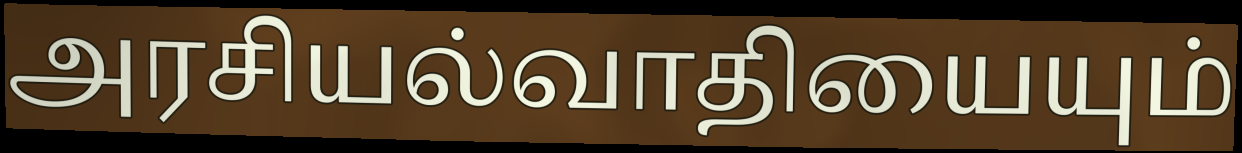
அரசியல்வாதியையும்